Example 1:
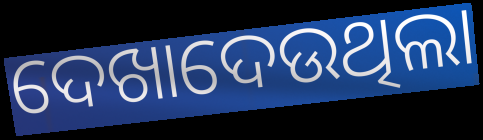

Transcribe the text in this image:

ଦେଖାଦେଉଥିଲା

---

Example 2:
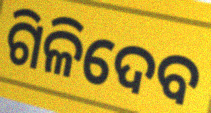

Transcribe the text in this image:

ଗିଳିଦେବ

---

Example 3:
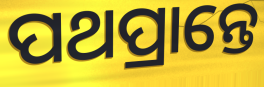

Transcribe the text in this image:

ପଥପ୍ରାନ୍ତେ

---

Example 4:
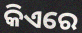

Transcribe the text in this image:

କିଏରେ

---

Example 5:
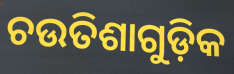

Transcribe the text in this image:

ଚଉତିଶାଗୁଡ଼ିକ